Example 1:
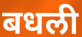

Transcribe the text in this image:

बधली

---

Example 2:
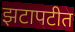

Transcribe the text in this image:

झटापटीत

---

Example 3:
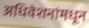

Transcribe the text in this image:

अधिवेशनांमधून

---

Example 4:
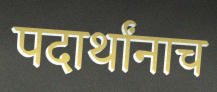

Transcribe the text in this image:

पदार्थांनाच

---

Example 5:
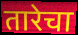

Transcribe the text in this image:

तारेचा